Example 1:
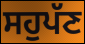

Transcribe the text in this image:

ਸਹੁਪੱਣ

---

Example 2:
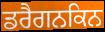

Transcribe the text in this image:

ਡਰੈਗਨਕਿਨ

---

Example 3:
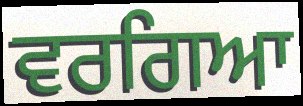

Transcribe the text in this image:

ਵਰਗਿਆ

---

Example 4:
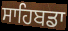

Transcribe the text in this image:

ਸਾਹਿਬਡਾ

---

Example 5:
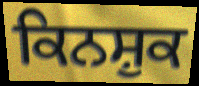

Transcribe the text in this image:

ਕਿਨਸ਼ੁਕ